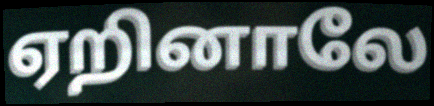
ஏறினாலே